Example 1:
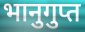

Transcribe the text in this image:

भानुगुप्त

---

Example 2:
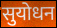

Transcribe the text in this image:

सुयोधन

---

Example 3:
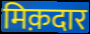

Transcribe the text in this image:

मिक़दार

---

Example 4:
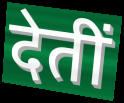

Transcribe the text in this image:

देतीं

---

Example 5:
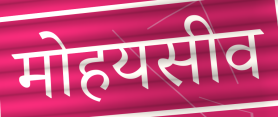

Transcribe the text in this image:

मोहयसीव